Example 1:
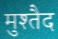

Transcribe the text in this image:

मुश्तैद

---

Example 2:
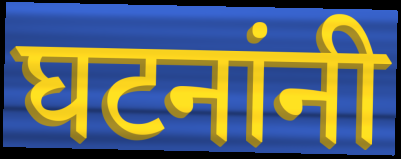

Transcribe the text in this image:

घटनांनी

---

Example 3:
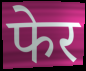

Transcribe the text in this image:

फेर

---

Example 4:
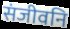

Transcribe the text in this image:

संजीवनि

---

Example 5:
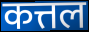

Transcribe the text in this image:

कत्तल